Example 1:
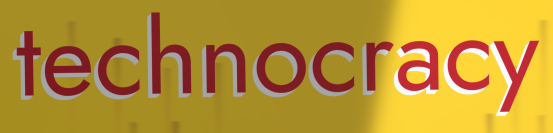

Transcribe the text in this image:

technocracy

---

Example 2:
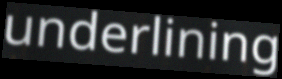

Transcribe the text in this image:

underlining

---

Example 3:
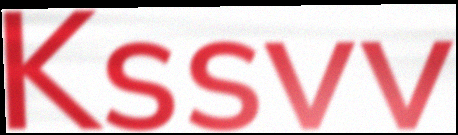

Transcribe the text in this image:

Kssvv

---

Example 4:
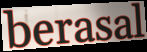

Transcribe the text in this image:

berasal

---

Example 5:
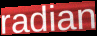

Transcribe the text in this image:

radian